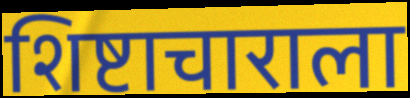
शिष्टाचाराला